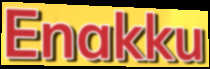
Enakku